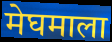
मेघमाला